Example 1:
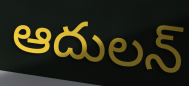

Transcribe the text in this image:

ఆదులన్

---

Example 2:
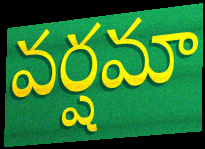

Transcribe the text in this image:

వర్షమా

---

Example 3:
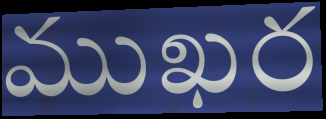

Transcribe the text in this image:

ముఖర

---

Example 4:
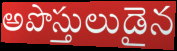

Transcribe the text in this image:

అపొస్తులుడైన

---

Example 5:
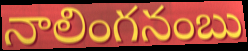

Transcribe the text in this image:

నాలింగనంబు